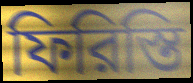
ফিরিস্তি